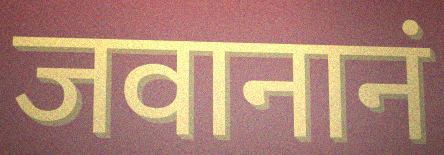
जवानानं